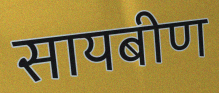
सायबीण